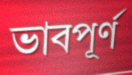
ভাবপূর্ণ